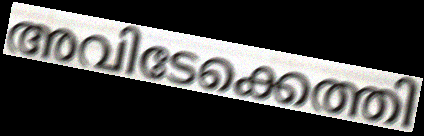
അവിടേക്കെത്തി